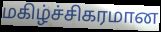
மகிழ்ச்சிகரமான